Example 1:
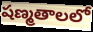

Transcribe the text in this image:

షణ్మతాలలో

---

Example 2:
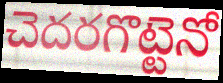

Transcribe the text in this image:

చెదరగొట్టెనో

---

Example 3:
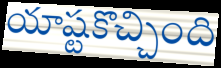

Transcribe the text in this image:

యాష్టకొచ్చింది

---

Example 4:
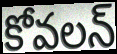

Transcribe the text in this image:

కోవలన్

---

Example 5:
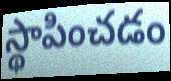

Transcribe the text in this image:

స్థాపించడం